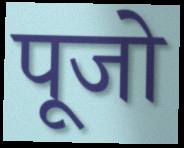
पूजो